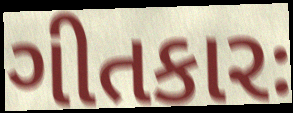
ગીતકારઃ